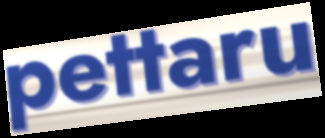
pettaru